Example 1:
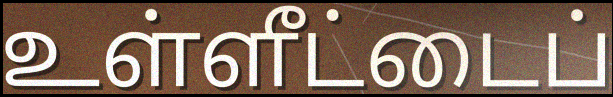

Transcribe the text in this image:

உள்ளீட்டைப்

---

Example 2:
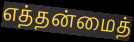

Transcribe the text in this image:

எத்தன்மைத்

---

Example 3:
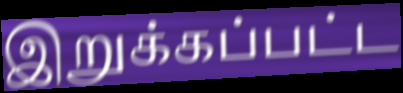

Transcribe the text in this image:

இறுக்கப்பட்ட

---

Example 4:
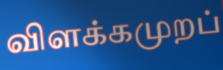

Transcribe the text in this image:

விளக்கமுறப்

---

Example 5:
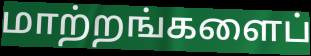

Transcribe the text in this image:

மாற்றங்களைப்